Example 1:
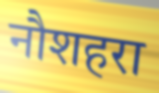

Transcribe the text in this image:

नौशहरा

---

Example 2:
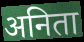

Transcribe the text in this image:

अनिता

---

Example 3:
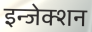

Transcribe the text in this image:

इन्जेक्शन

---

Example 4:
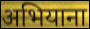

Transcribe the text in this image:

अभियाना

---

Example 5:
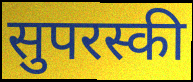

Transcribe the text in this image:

सुपरस्की